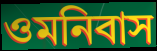
ওমনিবাস